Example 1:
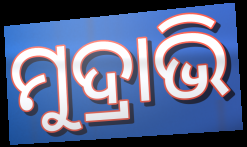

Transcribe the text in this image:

ମୁଦ୍ରାଭି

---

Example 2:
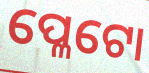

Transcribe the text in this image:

ପ୍ଳେଟୋ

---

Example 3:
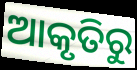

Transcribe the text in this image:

ଆକୃତିରୁ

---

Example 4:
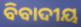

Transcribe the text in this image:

ବିବାଦୀୟ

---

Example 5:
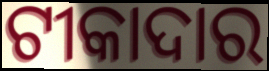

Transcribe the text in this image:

ଟୀକାଦାର